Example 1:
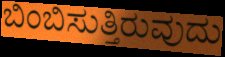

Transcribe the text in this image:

ಬಿಂಬಿಸುತ್ತಿರುವುದು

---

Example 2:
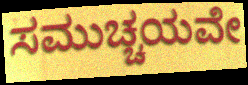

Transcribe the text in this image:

ಸಮುಚ್ಚಯವೇ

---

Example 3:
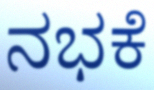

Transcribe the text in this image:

ನಭಕೆ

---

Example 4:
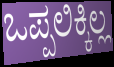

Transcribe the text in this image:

ಒಪ್ಪಲಿಕ್ಕಿಲ್ಲ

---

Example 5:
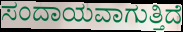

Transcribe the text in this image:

ಸಂದಾಯವಾಗುತ್ತಿದೆ